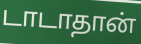
டாடாதான்